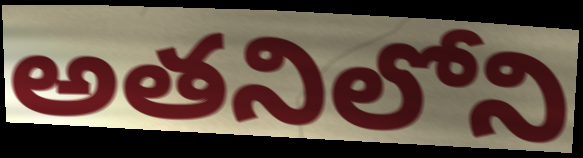
అతనిలోని